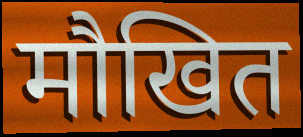
मौखित